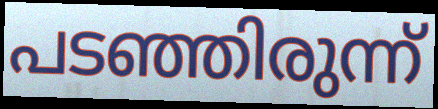
പടഞ്ഞിരുന്ന്